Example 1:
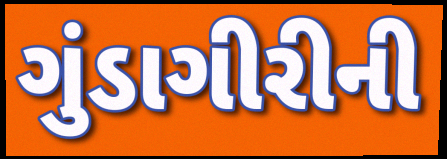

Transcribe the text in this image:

ગુંડાગીરીની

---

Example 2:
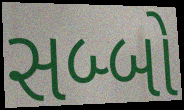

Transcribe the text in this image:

સબ્બો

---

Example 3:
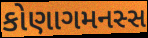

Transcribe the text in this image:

કોણાગમનસ્સ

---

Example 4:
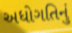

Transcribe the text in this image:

અધોગતિનું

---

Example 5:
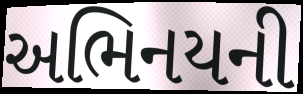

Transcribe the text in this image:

અભિનયની